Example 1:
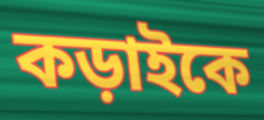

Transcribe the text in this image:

কড়াইকে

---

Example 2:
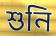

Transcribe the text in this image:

শুনি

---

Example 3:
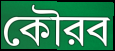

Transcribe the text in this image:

কৌরব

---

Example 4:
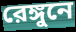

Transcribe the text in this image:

রেঙ্গুনে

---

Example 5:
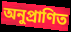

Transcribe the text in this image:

অনুপ্রাণিত